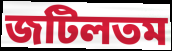
জটিলতম